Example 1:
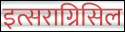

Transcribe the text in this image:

इत्सराग्रिसिल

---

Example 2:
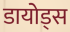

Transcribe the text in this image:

डायोड्स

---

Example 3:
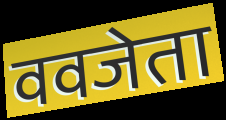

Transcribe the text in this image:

ववजेता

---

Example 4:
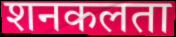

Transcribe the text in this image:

शनकलता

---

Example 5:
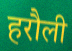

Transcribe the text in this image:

हरौली